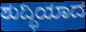
ಶುದ್ಧಿಯಾದ